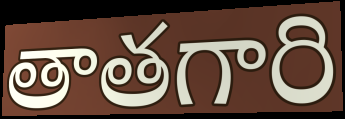
తాతగారి